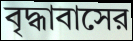
বৃদ্ধাবাসের